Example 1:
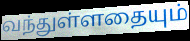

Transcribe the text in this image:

வந்துள்ளதையும்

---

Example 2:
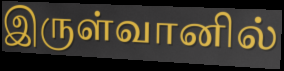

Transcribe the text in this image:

இருள்வானில்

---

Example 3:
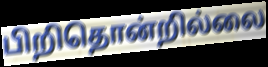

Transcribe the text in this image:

பிறிதொன்றில்லை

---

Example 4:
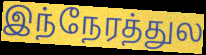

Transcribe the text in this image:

இந்நேரத்துல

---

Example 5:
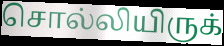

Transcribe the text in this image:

சொல்லியிருக்